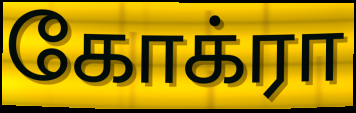
கோக்ரா